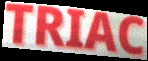
TRIAC